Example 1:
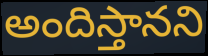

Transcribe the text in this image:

అందిస్తానని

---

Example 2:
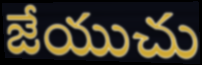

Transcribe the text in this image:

జేయుచు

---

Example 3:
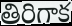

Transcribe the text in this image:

తిరిగాక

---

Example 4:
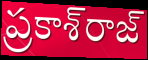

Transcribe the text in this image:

ప్రకాశ్‌రాజ్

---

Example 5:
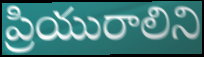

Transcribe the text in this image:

ప్రియురాలిని